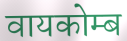
वायकोम्ब